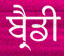
ਬ੍ਰੈਡੀ